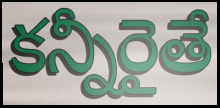
కన్నీరైతే